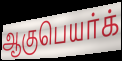
ஆகுபெயர்க்